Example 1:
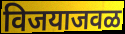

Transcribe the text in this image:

विजयाजवळ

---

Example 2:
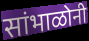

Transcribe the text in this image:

सांभाळोनी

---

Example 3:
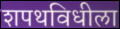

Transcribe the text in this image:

शपथविधीला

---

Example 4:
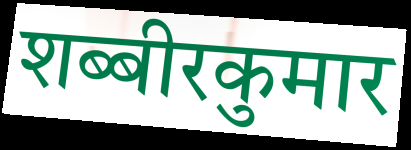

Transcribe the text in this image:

शब्बीरकुमार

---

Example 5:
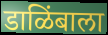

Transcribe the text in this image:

डाळिंबाला